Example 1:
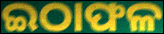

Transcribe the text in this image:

ଇଠାଫଳ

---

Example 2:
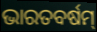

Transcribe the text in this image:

ଭାରତବର୍ଷମ୍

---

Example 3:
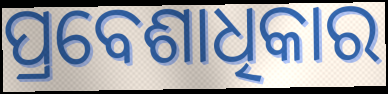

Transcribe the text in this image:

ପ୍ରବେଶାଧିକାର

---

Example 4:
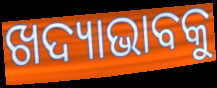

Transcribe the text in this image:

ଖଦ୍ୟାଭାବକୁ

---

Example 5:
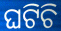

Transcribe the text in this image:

ଘଟିଚି